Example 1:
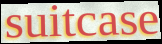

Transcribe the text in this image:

suitcase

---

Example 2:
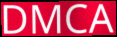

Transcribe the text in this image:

DMCA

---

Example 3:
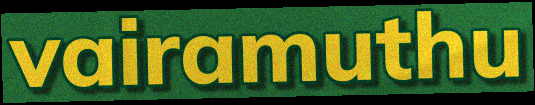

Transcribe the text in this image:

vairamuthu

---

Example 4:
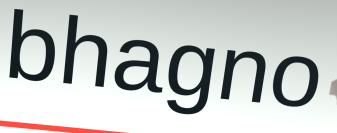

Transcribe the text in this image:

bhagno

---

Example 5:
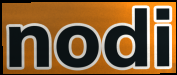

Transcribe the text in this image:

nodi